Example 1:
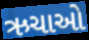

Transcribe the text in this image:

ઋચાઓ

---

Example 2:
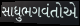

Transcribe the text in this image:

સાધુભગવંતોએ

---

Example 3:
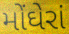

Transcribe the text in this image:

મોંઘેરાં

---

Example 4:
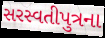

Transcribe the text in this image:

સરસ્વતીપુત્રના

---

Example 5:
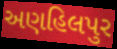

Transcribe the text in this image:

અણહિલપુર